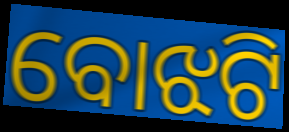
ବୋଝଟି